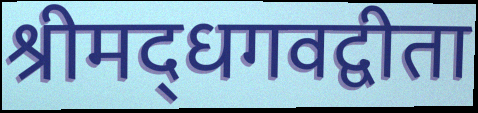
श्रीमद्धगवद्वीता